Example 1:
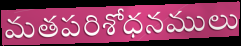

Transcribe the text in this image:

మతపరిశోధనములు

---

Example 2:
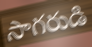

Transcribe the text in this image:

సాగరుడి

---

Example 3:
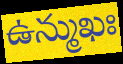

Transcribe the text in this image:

ఉన్ముఖః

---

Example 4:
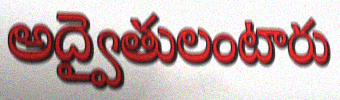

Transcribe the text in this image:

అద్వైతులంటారు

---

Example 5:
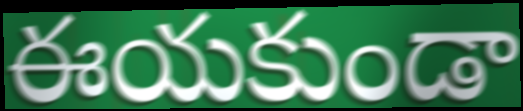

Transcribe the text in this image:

ఈయకుండా